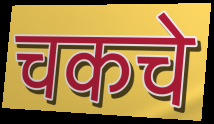
चकचे